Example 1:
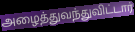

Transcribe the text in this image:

அழைத்துவந்துவிட்டார்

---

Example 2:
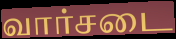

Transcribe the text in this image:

வார்சடை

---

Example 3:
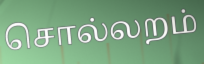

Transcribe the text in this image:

சொல்லறம்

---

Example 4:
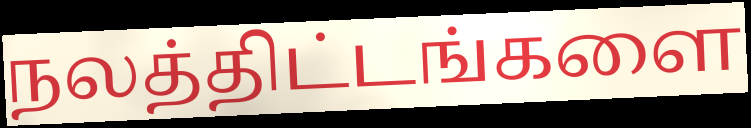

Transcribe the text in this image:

நலத்திட்டங்களை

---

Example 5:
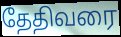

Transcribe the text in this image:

தேதிவரை